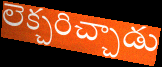
లెక్చరిచ్చాడు